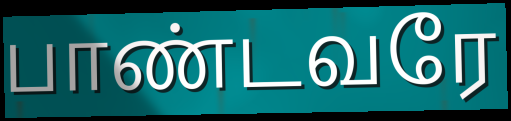
பாண்டவரே